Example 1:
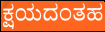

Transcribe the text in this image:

ಕ್ಷಯದಂತಹ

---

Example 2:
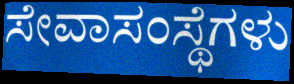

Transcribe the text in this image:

ಸೇವಾಸಂಸ್ಥೆಗಳು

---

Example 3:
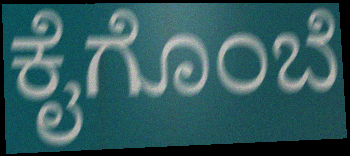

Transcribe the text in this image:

ಕೈಗೊಂಬೆ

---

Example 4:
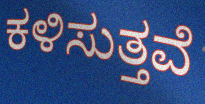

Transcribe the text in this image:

ಕಳಿಸುತ್ತವೆ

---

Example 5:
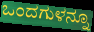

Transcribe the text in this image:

ಒಂದಗುಳನ್ನೂ